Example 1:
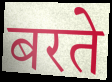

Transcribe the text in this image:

बरते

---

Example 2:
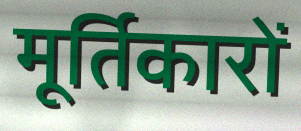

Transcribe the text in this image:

मूर्तिकारों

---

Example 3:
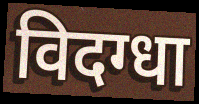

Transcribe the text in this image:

विदग्धा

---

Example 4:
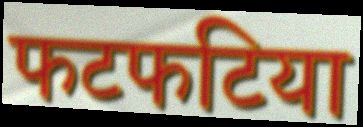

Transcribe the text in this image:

फटफटिया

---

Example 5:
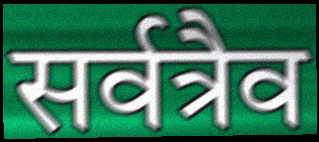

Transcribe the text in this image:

सर्वत्रैव